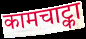
कामचाट्का